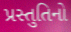
પ્રસ્તુતિનો